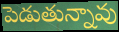
పెడుతున్నావు